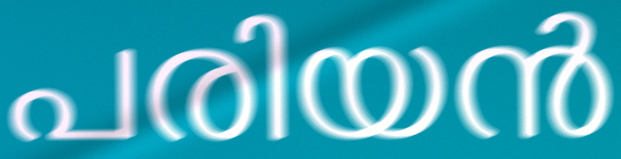
പരിയൻ